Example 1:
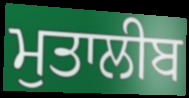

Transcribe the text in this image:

ਮੁਤਾਲੀਬ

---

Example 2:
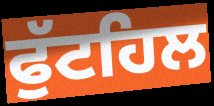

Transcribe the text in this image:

ਫੁੱਟਹਿਲ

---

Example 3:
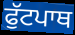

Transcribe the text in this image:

ਫੁੱਟਪਾਥ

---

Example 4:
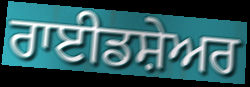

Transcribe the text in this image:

ਰਾਈਡਸ਼ੇਅਰ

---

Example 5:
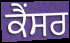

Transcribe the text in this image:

ਕੈੰਸਰ